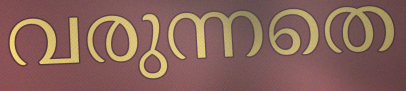
വരുന്നതെ